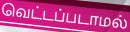
வெட்டப்படாமல்